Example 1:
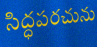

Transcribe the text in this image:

సిద్ధపరచును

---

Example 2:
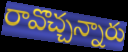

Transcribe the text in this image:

రావొచ్చన్నారు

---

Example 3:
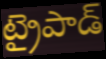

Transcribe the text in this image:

ట్రైపాడ్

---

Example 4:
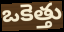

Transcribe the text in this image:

ఒకెత్తు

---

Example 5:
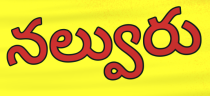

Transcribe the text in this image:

నల్వురు